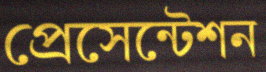
প্রেসেন্টেশন